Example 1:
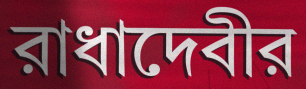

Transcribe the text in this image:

রাধাদেবীর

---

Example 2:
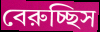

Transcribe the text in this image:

বেরুচ্ছিস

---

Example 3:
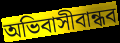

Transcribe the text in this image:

অভিবাসীবান্ধব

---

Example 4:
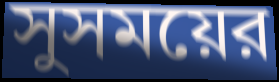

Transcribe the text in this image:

সুসময়ের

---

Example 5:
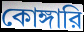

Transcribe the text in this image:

কোঙ্গারি